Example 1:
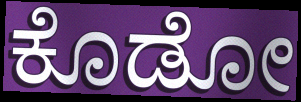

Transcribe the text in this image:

ಕೊಡೋ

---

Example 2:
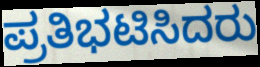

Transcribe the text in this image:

ಪ್ರತಿಭಟಿಸಿದರು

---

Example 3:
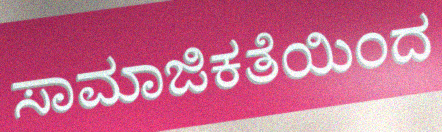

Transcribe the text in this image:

ಸಾಮಾಜಿಕತೆಯಿಂದ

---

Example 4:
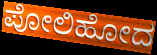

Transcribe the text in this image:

ಪೋಲಿಹೋದ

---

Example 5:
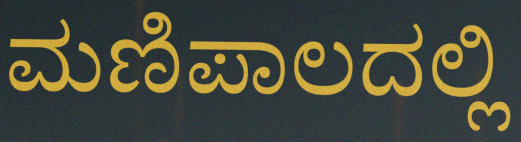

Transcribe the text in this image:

ಮಣಿಪಾಲದಲ್ಲಿ